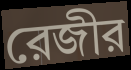
রেজীর